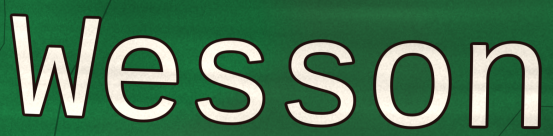
Wesson